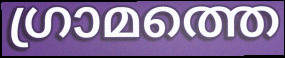
ഗ്രാമത്തെ